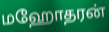
மஹோதரன்